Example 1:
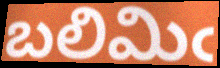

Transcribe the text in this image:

బలిమిఁ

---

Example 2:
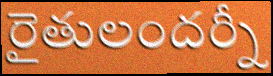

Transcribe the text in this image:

రైతులందర్నీ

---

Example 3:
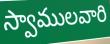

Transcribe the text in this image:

స్వాములవారి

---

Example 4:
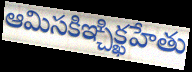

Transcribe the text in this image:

ఆమిసకిఞ్చిక్ఖహేతు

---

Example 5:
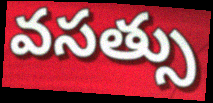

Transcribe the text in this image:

వసత్సు